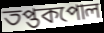
তপ্তকপোল